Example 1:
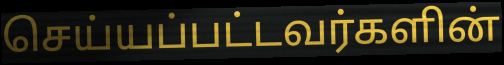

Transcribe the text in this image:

செய்யப்பட்டவர்களின்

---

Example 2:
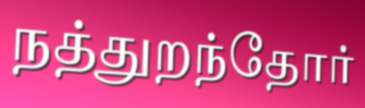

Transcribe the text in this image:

நத்துறந்தோர்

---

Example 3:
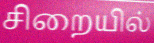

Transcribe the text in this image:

சிறையில்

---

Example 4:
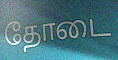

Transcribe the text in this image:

தோடை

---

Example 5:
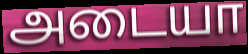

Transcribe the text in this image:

அடையா